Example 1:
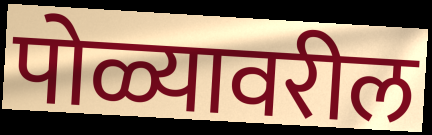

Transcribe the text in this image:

पोळ्यावरील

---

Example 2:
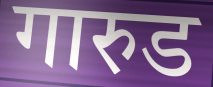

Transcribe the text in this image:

गारुड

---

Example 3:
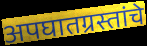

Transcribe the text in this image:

अपघातग्रस्तांचे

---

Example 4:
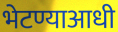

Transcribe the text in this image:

भेटण्याआधी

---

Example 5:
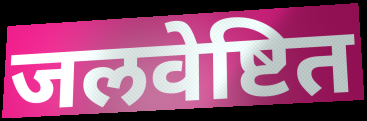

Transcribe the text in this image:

जलवेष्टित